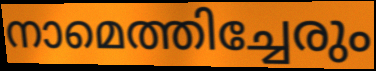
നാമെത്തിച്ചേരും